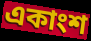
একাংশ